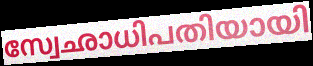
സ്വേഛാധിപതിയായി